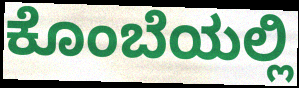
ಕೊಂಬೆಯಲ್ಲಿ